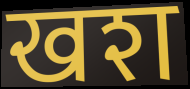
खश